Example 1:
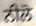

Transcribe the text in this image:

ਨੀਲੋ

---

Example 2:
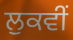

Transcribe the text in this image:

ਲੁਕਵੀਂ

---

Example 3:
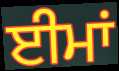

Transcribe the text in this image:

ਈਮਾਂ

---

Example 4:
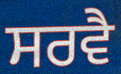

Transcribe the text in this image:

ਸਰਵੈ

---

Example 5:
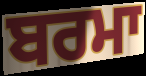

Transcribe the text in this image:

ਬਰਮਾ